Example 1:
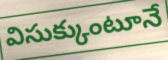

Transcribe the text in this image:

విసుక్కుంటూనే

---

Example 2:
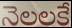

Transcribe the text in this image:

నెలలకే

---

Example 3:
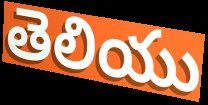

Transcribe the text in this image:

తెలియు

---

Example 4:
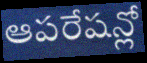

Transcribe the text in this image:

ఆపరేషన్లో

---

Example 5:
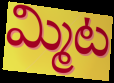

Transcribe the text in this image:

మ్మిట